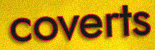
coverts